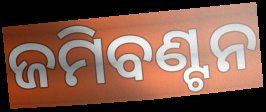
ଜମିବଣ୍ଟନ